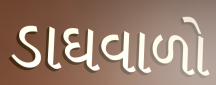
ડાઘવાળો